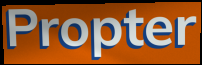
Propter